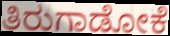
ತಿರುಗಾಡೋಕೆ